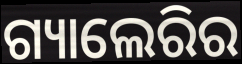
ଗ୍ୟାଲେରିର